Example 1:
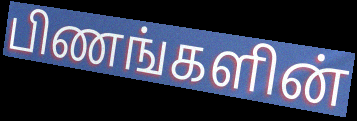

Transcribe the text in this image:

பிணங்களின்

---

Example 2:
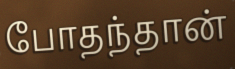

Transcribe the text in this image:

போதந்தான்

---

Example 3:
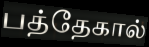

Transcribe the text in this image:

பத்தேகால்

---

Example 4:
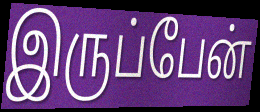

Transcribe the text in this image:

இருப்பேன்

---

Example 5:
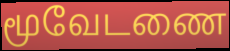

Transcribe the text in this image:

மூவேடணை